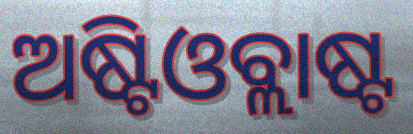
ଅଷ୍ଟିଓବ୍ଲାଷ୍ଟ